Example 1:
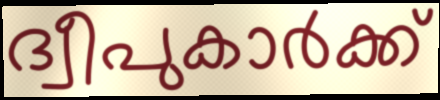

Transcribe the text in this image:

ദ്വീപുകാർക്ക്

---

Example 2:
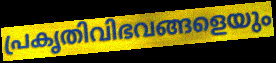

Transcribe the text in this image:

പ്രകൃതിവിഭവങ്ങളെയും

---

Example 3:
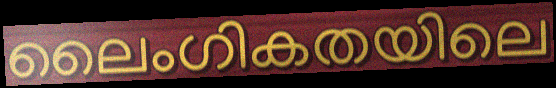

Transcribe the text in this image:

ലൈംഗികതയിലെ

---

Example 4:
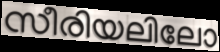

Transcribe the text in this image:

സീരിയലിലോ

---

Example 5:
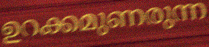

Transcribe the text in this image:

ഉറക്കമുണരുന്ന